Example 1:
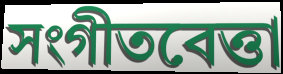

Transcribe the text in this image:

সংগীতবেত্তা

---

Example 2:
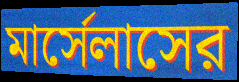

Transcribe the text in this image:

মার্সেলাসের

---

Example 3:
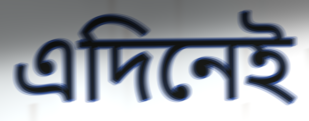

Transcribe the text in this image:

এদিনেই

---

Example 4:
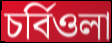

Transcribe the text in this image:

চর্বিওলা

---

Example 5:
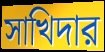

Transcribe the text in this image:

সাখিদার